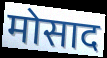
मोसाद